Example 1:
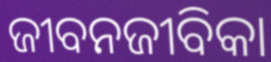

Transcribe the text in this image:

ଜୀବନଜୀବିକା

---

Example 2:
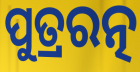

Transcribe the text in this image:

ପୁତ୍ରରତ୍ନ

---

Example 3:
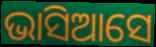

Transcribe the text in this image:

ଭାସିଆସେ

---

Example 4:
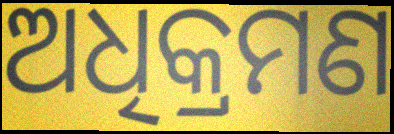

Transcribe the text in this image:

ଅଧିକ୍ରମଣ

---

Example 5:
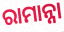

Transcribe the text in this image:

ରାମାନ୍ନା